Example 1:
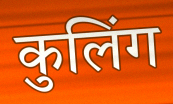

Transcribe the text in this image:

कुलिंग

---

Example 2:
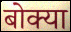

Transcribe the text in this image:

बोक्या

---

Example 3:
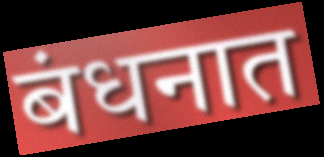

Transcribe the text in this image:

बंधनात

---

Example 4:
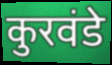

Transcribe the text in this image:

कुरवंडे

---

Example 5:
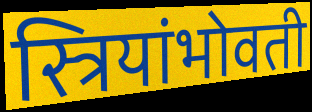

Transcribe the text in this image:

स्त्रियांभोवती